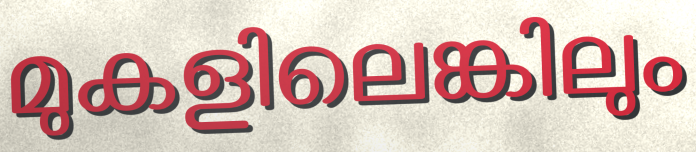
മുകളിലെങ്കിലും